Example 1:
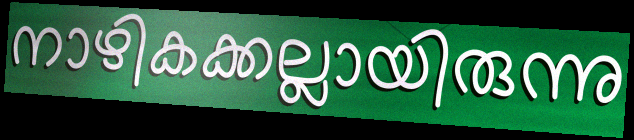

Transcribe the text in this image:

നാഴികക്കല്ലായിരുന്നു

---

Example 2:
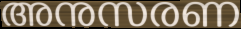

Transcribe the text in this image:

അനുസരണ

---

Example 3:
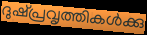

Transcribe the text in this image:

ദുഷ്പ്രവൃത്തികൾക്കു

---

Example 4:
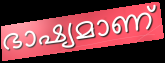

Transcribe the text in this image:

ഭാഷ്യമാണ്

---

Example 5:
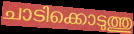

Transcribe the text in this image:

ചാടിക്കൊടുത്തു